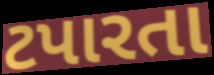
ટપારતા